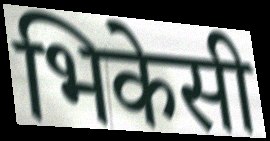
भिकेसी